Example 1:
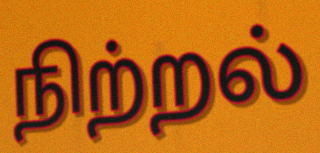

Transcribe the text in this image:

நிற்றல்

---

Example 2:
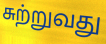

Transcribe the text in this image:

சுற்றுவது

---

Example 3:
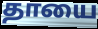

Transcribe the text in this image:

தாயை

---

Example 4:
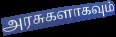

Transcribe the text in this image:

அரசுகளாகவும்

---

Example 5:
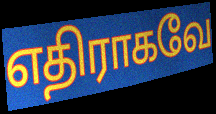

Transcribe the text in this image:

எதிராகவே